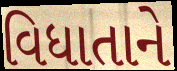
વિધાતાને